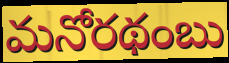
మనోరథంబు